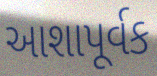
આશાપૂર્વક